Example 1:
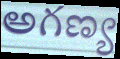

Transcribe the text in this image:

అగణ్య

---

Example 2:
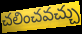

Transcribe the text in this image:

చలించవచ్చు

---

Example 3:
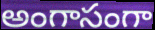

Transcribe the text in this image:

అంగాసంగా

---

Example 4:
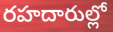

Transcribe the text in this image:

రహదారుల్లో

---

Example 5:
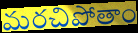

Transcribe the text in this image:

మరచిపోతాం